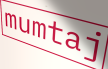
mumtaj